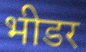
भीडर